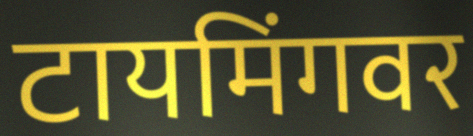
टायमिंगवर